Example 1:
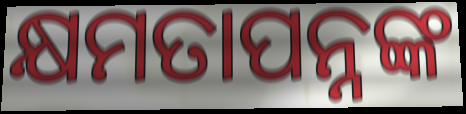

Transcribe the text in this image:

କ୍ଷମତାପନ୍ନଙ୍କ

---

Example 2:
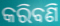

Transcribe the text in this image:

କରିବଣି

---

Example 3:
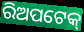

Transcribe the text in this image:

ରିଅପଟେକ୍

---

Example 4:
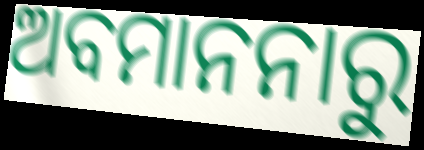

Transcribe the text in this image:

ଅବମାନନାରୁ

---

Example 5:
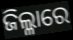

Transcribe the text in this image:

ଜିଲ୍ଳାରେ